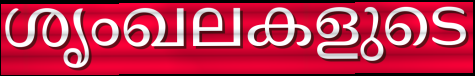
ശൃംഖലകളുടെ